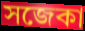
সজেকা